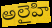
అలైహి